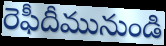
రెఫీదీమునుండి